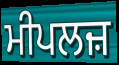
ਮੀਪਲਜ਼